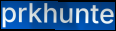
prkhunte